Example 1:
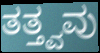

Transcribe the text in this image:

ತತ್ತ್ವವು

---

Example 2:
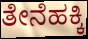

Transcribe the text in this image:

ತೇನೆಹಕ್ಕಿ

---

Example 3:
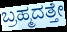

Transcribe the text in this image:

ಬ್ರಹ್ಮದತ್ತೇ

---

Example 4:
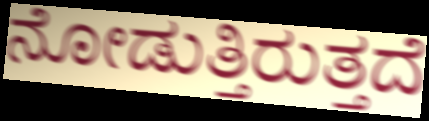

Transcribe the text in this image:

ನೋಡುತ್ತಿರುತ್ತದೆ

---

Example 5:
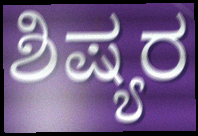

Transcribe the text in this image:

ಶಿಷ್ಯರ